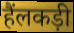
हैंलकड़ी